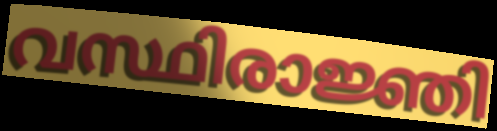
വസ്ഥിരാജ്ഞി